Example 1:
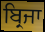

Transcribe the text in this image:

ਬ੍ਰਿਜਾ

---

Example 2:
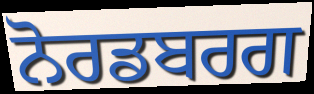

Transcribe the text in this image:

ਨੋਰਡਬਰਗ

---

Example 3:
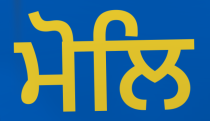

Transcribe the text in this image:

ਮੋਲਿ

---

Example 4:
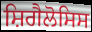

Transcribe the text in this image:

ਸ਼ਿਗੈਲੋਸਿਸ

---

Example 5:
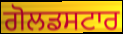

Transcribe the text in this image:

ਗੋਲਡਸਟਾਰ